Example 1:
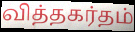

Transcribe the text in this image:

வித்தகர்தம்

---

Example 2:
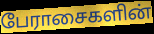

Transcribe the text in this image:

பேராசைகளின்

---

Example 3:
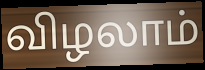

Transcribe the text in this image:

விழலாம்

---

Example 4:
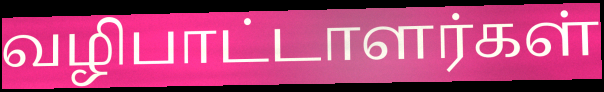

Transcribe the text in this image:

வழிபாட்டாளர்கள்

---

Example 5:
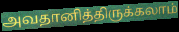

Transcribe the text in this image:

அவதானித்திருக்கலாம்